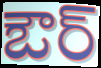
ఔర్